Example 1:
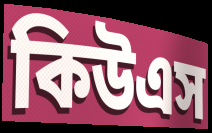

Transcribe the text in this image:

কিউএস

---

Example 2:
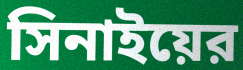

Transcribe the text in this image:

সিনাইয়ের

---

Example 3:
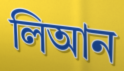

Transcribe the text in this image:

লিআন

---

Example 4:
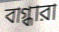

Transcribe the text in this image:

বাগ্ধারা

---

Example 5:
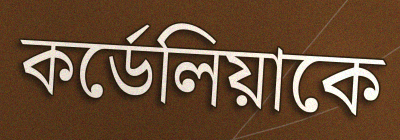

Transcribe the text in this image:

কর্ডেলিয়াকে